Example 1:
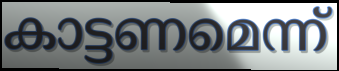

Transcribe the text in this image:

കാട്ടണമെന്ന്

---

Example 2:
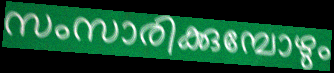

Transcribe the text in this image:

സംസാരിക്കുമ്പോഴും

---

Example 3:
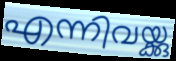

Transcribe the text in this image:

എന്നിവയ്ക്കു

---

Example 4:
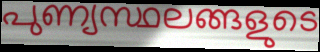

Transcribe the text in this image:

പുണ്യസ്ഥലങ്ങളുടെ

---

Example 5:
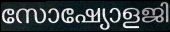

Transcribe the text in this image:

സോഷ്യോളജി